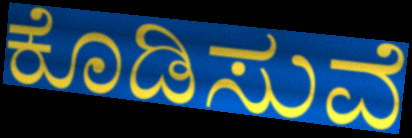
ಕೊಡಿಸುವೆ